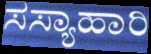
ಸಸ್ಯಾಹಾರಿ